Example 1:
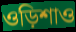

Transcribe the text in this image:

ওড়িশাও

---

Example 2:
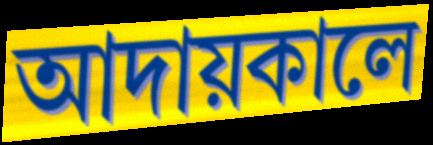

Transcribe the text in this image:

আদায়কালে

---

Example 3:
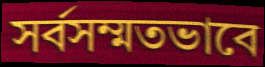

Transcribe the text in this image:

সর্বসম্মতভাবে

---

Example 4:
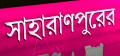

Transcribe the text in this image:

সাহারাণপুরের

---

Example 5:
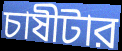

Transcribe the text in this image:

চাষীটার